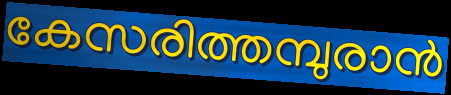
കേസരിത്തമ്പുരാൻ